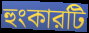
হুংকারটি